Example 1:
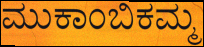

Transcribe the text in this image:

ಮುಕಾಂಬಿಕಮ್ಮ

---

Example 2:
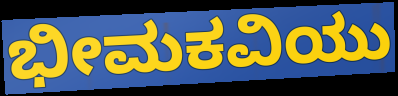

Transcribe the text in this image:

ಭೀಮಕವಿಯು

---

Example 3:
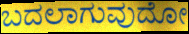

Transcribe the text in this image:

ಬದಲಾಗುವುದೋ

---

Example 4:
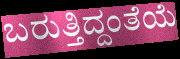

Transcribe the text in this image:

ಬರುತ್ತಿದ್ದಂತೆಯೆ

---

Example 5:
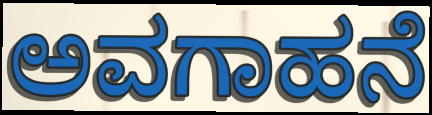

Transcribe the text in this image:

ಅವಗಾಹನೆ